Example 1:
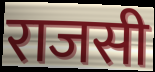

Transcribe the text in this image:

राजसी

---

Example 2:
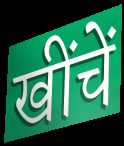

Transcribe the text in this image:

खींचें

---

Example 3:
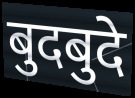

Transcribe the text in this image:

बुदबुदे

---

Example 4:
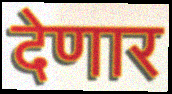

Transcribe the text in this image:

देणार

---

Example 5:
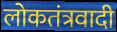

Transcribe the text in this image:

लोकतंत्रवादी